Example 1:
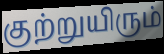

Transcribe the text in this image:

குற்றுயிரும்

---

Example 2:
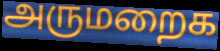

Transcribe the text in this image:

அருமறைக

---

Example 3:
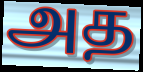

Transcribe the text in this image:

அத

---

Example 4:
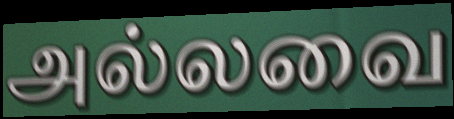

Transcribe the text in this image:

அல்லவை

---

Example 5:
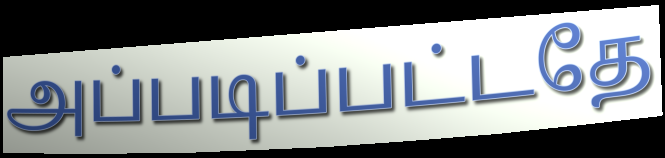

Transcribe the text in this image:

அப்படிப்பட்டதே